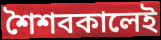
শৈশবকালেই